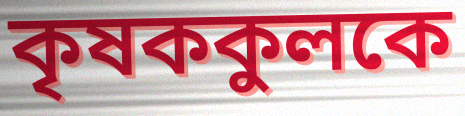
কৃষককুলকে